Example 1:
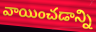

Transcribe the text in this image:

వాయించడాన్ని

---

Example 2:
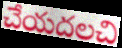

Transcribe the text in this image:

చేయదలచి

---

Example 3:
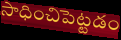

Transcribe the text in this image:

సాధించిపెట్టడం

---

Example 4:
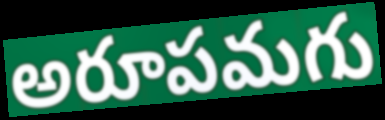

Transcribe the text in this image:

అరూపమగు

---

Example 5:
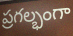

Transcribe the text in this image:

ప్రగల్భంగా